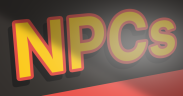
NPCs